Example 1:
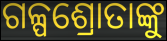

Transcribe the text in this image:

ଗଳ୍ପଶ୍ରୋତାଙ୍କୁ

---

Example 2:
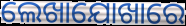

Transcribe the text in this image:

ଲେଖାଯୋଖାରେ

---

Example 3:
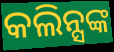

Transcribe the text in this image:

କଲିନ୍ସଙ୍କ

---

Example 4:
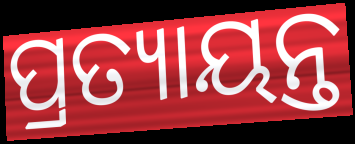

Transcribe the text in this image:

ପ୍ରତ୍ୟାୟନ୍ତ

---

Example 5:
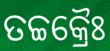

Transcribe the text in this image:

ତଚ୍ଚକ୍ରୈଃ